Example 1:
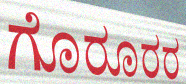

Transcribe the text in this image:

ಗೊರೂರರ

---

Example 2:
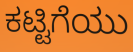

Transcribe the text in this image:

ಕಟ್ಟಿಗೆಯು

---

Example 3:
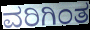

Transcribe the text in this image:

ವರಿಗಿಂತ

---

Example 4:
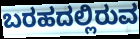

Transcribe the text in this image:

ಬರಹದಲ್ಲಿರುವ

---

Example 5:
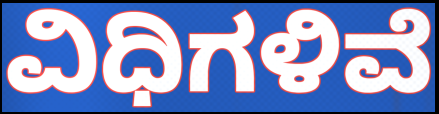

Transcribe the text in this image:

ವಿಧಿಗಳಿವೆ